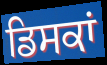
ਡਿਸਕਾਂ